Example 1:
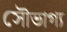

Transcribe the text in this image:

সৌভাগ্য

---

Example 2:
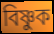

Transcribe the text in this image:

বিষ্ণুক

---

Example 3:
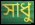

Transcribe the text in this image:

সাধু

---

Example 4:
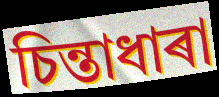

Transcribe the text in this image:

চিন্তাধাৰা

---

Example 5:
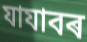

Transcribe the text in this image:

যাযাবৰ